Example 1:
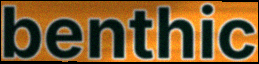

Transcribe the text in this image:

benthic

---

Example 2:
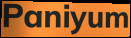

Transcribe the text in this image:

Paniyum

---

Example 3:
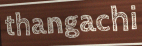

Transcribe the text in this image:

thangachi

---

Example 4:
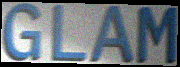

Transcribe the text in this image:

GLAM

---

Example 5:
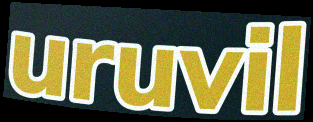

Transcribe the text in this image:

uruvil